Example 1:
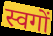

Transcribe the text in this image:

स्वगों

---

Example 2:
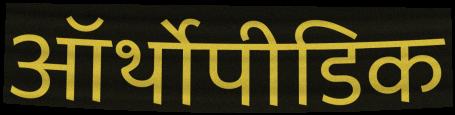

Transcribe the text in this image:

ऑर्थोपीडिक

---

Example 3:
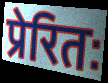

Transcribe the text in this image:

प्रेरितः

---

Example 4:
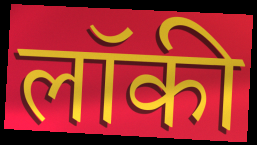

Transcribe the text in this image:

लॉकी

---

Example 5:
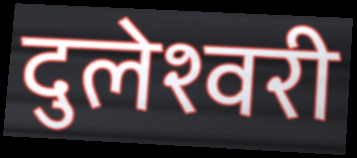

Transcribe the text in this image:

दुलेश्वरी